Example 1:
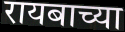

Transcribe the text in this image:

रायबाच्या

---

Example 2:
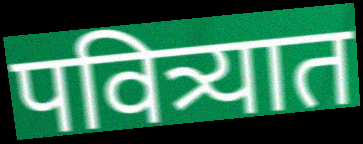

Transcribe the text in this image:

पवित्र्यात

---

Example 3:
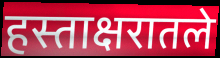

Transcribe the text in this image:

हस्ताक्षरातले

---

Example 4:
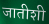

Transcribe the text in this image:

जातीशी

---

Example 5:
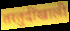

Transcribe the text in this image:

तरतुदींखाली